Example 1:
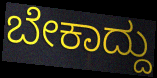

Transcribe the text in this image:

ಬೇಕಾದ್ದು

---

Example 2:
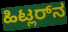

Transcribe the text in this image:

ಹಿಟ್ಲರ್‌ನ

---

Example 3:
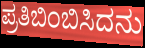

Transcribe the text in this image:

ಪ್ರತಿಬಿಂಬಿಸಿದನು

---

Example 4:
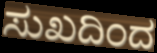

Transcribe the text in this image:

ಸುಖದಿಂದ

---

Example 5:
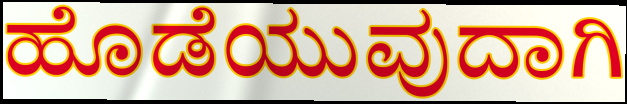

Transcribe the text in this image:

ಹೊಡೆಯುವುದಾಗಿ